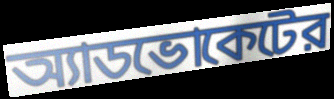
অ্যাডভোকেটের